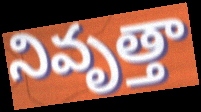
నివృత్తా